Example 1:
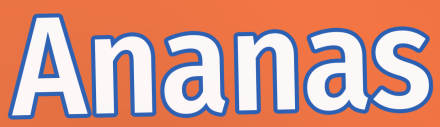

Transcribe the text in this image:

Ananas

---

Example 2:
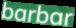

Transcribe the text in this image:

barbar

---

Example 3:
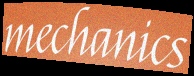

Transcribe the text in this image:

mechanics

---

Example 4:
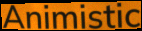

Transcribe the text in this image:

Animistic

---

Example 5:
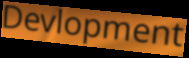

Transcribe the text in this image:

Devlopment